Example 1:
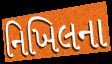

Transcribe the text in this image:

નિખિલના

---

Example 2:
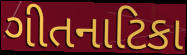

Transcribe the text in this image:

ગીતનાટિકા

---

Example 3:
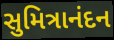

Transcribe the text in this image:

સુમિત્રાનંદન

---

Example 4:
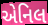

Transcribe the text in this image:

એનિલ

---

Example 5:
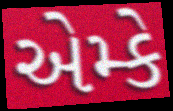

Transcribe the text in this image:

એમ્કે